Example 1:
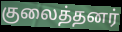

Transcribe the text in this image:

குலைத்தனர்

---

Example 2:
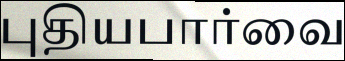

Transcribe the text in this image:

புதியபார்வை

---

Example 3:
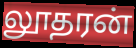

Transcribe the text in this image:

லூதரன்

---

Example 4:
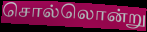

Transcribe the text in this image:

சொல்லொன்று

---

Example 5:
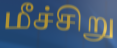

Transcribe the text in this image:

மீச்சிறு